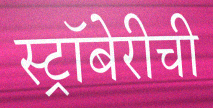
स्ट्रॉबेरीची